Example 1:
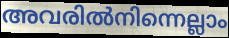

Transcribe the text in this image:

അവരിൽനിന്നെല്ലാം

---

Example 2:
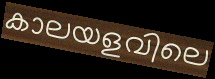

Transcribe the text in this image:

കാലയളവിലെ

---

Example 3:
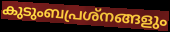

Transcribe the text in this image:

കുടുംബപ്രശ്നങ്ങളും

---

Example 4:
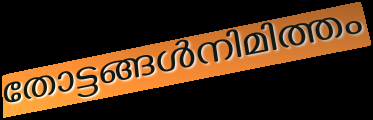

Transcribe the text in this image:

തോട്ടങ്ങൾനിമിത്തം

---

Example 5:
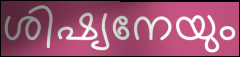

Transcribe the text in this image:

ശിഷ്യനേയും